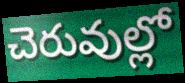
చెరువుల్లో